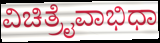
ವಿಚಿತ್ರೈವಾಭಿಧಾ